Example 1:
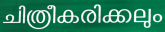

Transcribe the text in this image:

ചിത്രീകരിക്കലും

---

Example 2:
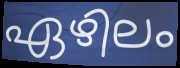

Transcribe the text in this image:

ഏഴിലം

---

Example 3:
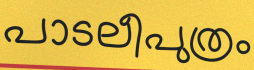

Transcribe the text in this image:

പാടലീപുത്രം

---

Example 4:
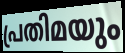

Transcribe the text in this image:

പ്രതിമയും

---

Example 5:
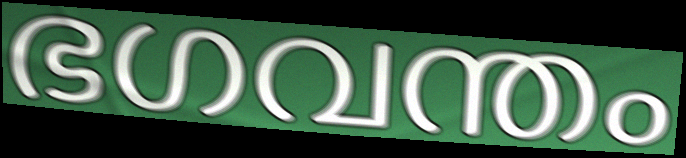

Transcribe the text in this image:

ഭഗവന്തം